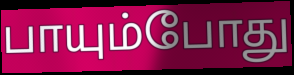
பாயும்போது